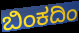
ಬಿಂಕದಿಂ